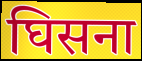
घिसना